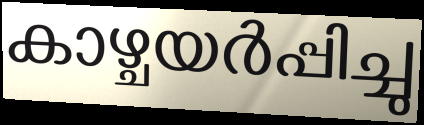
കാഴ്ചയർപ്പിച്ചു